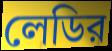
লেডির